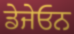
ਡੇਜੇਓਨ